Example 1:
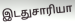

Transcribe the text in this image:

இடதுசாரியா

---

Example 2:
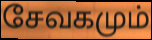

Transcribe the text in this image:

சேவகமும்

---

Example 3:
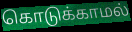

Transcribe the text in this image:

கொடுக்காமல்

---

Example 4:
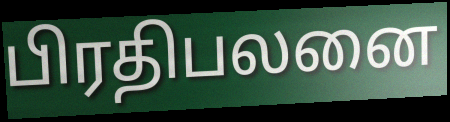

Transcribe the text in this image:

பிரதிபலனை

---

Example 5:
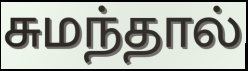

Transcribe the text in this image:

சுமந்தால்